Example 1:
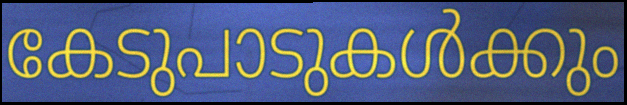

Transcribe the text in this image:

കേടുപാടുകൾക്കും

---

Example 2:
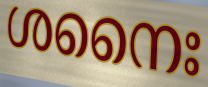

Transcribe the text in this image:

ശനൈഃ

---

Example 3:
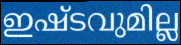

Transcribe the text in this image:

ഇഷ്ടവുമില്ല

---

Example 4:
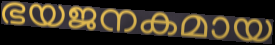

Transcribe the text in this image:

ഭയജനകമായ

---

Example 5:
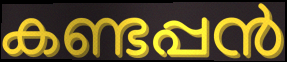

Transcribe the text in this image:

കണ്ടപ്പൻ